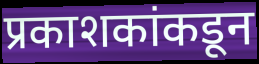
प्रकाशकांकडून